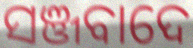
ସଞ୍ଜବାଦେ